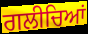
ਗਲੀਚਿਆਂ